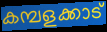
കമ്പളക്കാട്